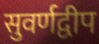
सुवर्णद्वीप